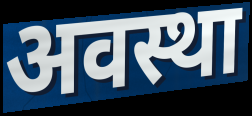
अवस्था